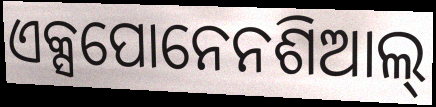
ଏକ୍ସପୋନେନଶିଆଲ୍